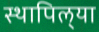
स्थापिल्या